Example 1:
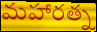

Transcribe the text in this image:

మహారత్న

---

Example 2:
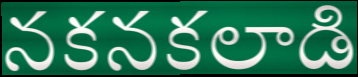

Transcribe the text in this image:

నకనకలాడి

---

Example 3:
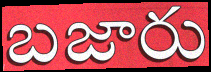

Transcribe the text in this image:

బజారు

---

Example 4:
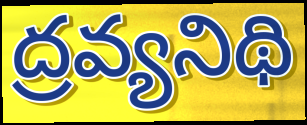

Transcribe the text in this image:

ద్రవ్యనిథి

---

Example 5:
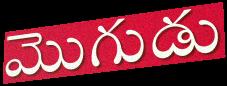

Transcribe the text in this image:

మొగుడు